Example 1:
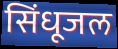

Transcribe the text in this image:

सिंधूजल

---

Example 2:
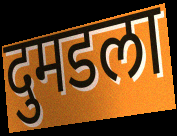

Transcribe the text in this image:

दुमडला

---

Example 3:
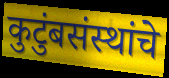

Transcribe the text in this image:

कुटुंबसंस्थांचे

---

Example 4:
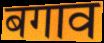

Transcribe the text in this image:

बगाव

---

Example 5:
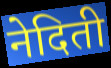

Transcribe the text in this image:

नेदिती